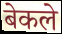
बेकले